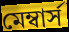
মেম্বার্স